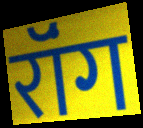
रॉंग